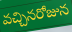
వచ్చినరోజున